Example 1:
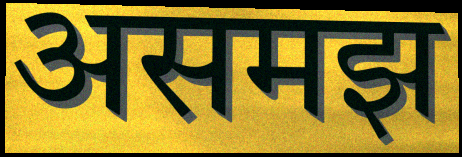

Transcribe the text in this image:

असमझ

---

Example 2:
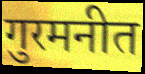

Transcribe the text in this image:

गुरमनीत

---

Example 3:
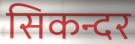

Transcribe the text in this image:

सिकन्दर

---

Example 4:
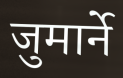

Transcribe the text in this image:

जुमार्ने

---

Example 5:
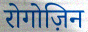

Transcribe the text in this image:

रोगोज़िन